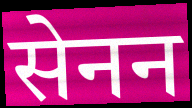
सेनन